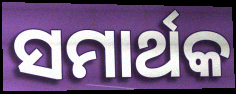
ସମାର୍ଥକ